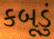
કબૂડું